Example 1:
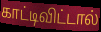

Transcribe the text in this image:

காட்டிவிட்டால்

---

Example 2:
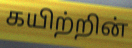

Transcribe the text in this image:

கயிற்றின்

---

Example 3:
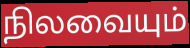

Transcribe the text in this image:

நிலவையும்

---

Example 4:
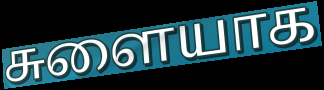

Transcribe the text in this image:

சுளையாக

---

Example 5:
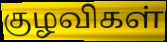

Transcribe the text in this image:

குழவிகள்